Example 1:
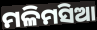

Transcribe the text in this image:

ମଳିମସିଆ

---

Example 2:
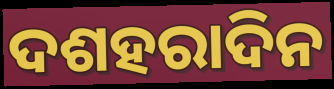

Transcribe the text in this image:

ଦଶହରାଦିନ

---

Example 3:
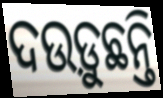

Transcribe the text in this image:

ଦଉଡ଼ୁଛନ୍ତି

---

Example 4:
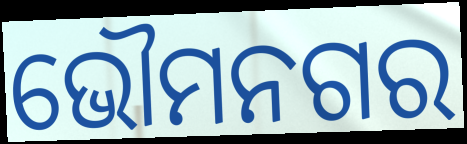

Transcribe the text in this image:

ଭୌମନଗର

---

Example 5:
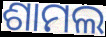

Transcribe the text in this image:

ଶାମଲ